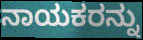
ನಾಯಕರನ್ನು